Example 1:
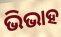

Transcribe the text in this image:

ଭିଭାହ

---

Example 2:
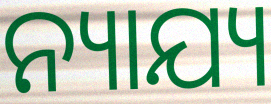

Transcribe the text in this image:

ନ୍ୟାଯ୍ୟ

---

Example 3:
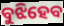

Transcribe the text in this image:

ବୁଝିହେବ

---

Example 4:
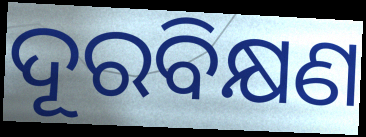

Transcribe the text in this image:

ଦୂରବିକ୍ଷଣ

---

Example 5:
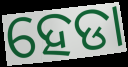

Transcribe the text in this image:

ହେଡା